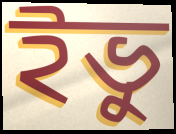
ইভু